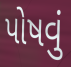
પોષવું